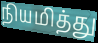
நியமித்து